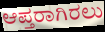
ಆಪ್ತರಾಗಿರಲು